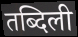
तब्दिली